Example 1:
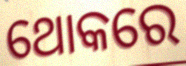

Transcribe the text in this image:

ଥୋକରେ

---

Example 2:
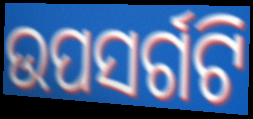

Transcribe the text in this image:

ଉପସର୍ଗଟି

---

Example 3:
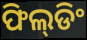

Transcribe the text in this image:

ଫିଲ୍‌ଡିଂ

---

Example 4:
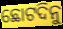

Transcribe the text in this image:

ଛୋଟଦିନୁ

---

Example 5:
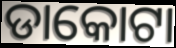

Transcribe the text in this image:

ଡାକୋଟା